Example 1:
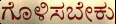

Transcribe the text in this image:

ಗೊಳಿಸಬೇಕು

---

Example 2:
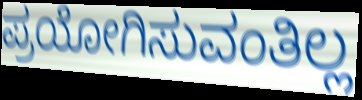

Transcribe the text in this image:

ಪ್ರಯೋಗಿಸುವಂತಿಲ್ಲ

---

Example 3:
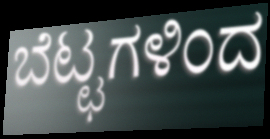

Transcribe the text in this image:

ಬೆಟ್ಟಗಳಿಂದ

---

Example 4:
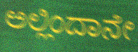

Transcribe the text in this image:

ಅಲ್ಲಿಂದಾನೇ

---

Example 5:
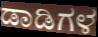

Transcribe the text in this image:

ಡಾಡಿಗಳ